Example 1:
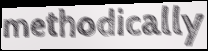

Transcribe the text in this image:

methodically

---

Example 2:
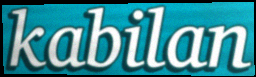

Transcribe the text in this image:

kabilan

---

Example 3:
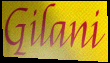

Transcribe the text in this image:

Gilani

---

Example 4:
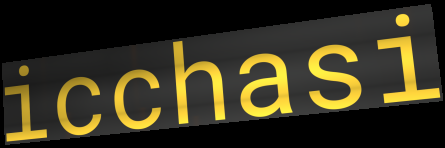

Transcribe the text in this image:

icchasi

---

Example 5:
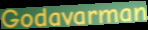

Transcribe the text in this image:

Godavarman